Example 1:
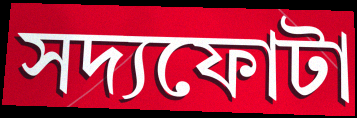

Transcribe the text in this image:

সদ্যফোটা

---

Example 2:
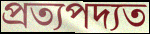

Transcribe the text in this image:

প্রত্যপদ্যত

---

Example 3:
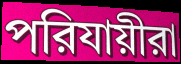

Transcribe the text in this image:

পরিযায়ীরা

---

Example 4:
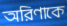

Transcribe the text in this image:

অরিণাকে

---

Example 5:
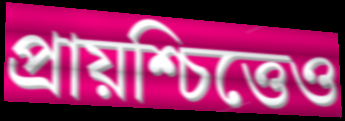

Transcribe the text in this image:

প্রায়শ্চিত্তেও